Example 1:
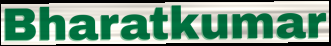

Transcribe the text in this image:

Bharatkumar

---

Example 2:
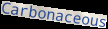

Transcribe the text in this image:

Carbonaceous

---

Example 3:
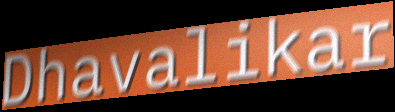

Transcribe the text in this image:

Dhavalikar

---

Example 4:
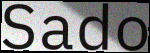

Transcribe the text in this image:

Sado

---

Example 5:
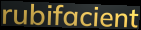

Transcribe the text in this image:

rubifacient